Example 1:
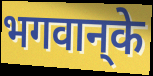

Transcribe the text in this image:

भगवान्‌के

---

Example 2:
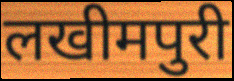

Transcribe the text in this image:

लखीमपुरी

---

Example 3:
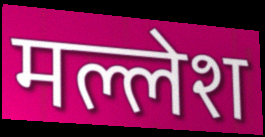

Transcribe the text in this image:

मल्लेश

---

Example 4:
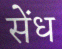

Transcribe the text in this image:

सेंध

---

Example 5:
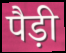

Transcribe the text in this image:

पैड़ी